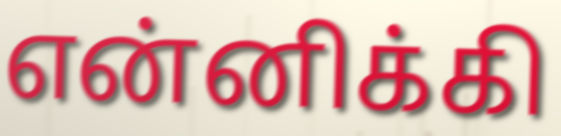
என்னிக்கி